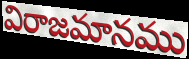
విరాజమానము